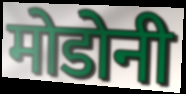
मोडोनी